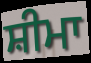
ਸ਼ੀਮਾ